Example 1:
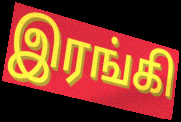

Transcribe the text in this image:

இரங்கி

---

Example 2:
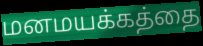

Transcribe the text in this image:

மனமயக்கத்தை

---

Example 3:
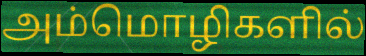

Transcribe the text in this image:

அம்மொழிகளில்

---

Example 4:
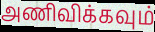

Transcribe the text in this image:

அணிவிக்கவும்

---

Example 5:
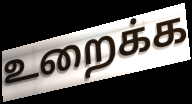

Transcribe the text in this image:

உறைக்க